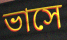
ভাসে